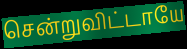
சென்றுவிட்டாயே